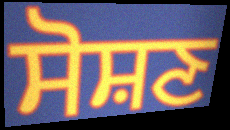
ਸੋਸ਼ਣ